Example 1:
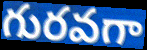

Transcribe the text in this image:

గురవగా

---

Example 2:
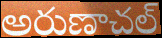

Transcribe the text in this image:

అరుణాచల్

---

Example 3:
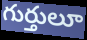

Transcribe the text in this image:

గుర్తులూ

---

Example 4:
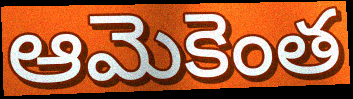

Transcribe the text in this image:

ఆమెకెంత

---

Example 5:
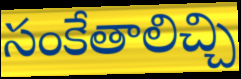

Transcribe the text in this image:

సంకేతాలిచ్చి